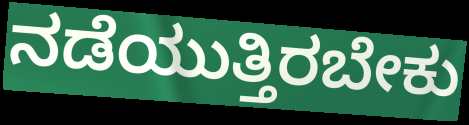
ನಡೆಯುತ್ತಿರಬೇಕು